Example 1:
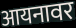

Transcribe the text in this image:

आयनावर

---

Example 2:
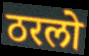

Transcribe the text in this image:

ठरलो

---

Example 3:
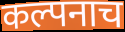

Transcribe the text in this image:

कल्पनाच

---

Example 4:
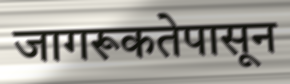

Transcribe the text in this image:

जागरूकतेपासून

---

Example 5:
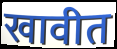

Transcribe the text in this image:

खावीत